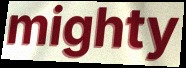
mighty